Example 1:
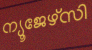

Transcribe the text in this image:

ന്യൂജേഴ്സി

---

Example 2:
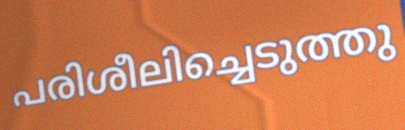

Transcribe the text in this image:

പരിശീലിച്ചെടുത്തു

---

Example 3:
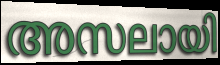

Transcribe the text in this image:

അസലായി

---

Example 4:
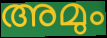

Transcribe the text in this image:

അമും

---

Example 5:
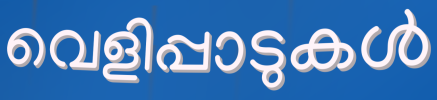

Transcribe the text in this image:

വെളിപ്പാടുകൾ